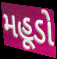
મહૂડો